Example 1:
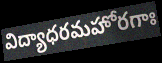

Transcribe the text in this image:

విద్యాధరమహోరగాః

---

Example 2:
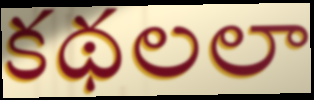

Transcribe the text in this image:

కథలలా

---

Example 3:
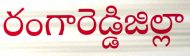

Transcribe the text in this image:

రంగారెడ్డిజిల్లా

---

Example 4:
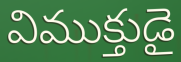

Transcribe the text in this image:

విముక్తుడై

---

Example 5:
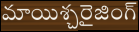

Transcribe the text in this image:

మాయిశ్చరైజింగ్